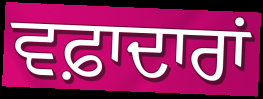
ਵਫ਼ਾਦਾਰਾਂ